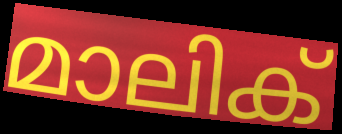
മാലിക്